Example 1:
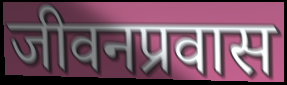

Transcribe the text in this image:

जीवनप्रवास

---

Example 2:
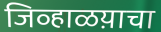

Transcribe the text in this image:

जिव्हाळय़ाचा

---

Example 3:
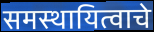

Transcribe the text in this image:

समस्थायित्वाचे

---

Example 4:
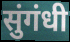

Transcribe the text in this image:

सुंगंधी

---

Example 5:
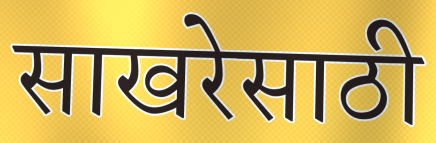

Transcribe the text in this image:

साखरेसाठी